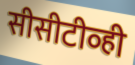
सीसीटीव्ही